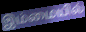
இம்மையில்